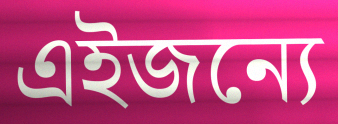
এইজন্যে